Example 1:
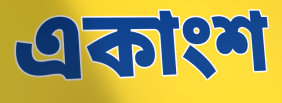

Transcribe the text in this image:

একাংশ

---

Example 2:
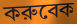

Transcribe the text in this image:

করুবেক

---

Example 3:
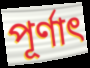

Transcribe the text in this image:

পূর্ণাৎ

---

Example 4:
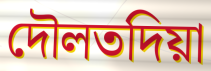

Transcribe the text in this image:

দৌলতদিয়া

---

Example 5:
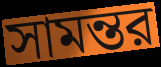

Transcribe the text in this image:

সামন্তর